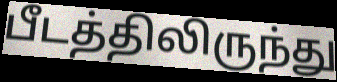
பீடத்திலிருந்து